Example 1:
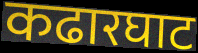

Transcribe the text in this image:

कढारघाट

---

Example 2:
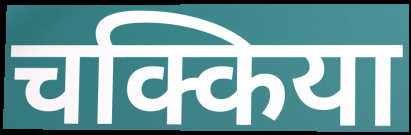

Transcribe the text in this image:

चक्किया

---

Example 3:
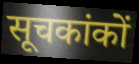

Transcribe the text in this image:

सूचकांकों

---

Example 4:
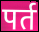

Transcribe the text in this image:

पर्त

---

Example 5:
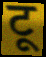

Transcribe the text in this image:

टू